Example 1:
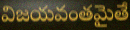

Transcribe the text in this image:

విజయవంతమైతే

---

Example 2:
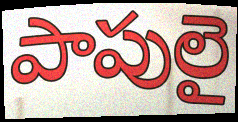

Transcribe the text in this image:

పాపులై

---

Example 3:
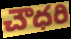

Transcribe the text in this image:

చౌధరి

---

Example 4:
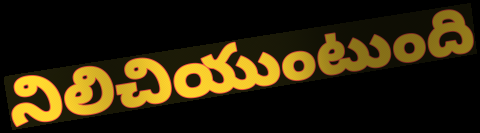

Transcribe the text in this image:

నిలిచియుంటుంది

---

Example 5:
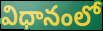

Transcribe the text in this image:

విధానంలో